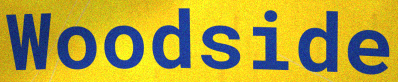
Woodside